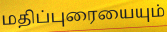
மதிப்புரையையும்